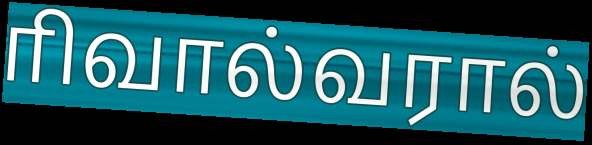
ரிவால்வரால்